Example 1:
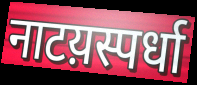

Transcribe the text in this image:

नाटय़स्पर्धा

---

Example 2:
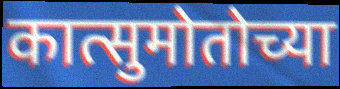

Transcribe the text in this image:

कात्सुमोतोच्या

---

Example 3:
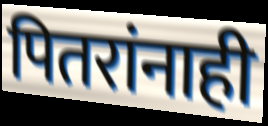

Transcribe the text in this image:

पितरांनाही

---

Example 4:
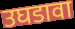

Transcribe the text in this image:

उघडावा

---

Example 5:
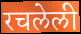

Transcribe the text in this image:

रचलेली